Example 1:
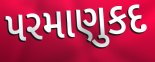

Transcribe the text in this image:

પરમાણુકદ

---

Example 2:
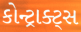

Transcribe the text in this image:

કોન્ટ્રાક્ટ્સ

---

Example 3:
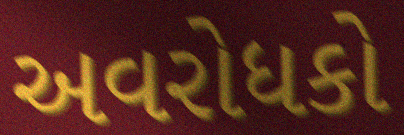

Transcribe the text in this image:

અવરોધકો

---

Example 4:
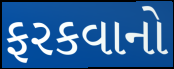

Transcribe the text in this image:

ફરકવાનો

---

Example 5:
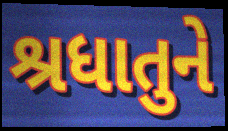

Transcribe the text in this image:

શ્રધાતુને